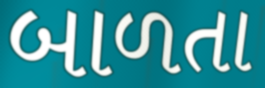
બાળતા